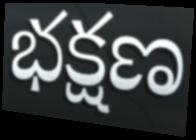
భక్షణ